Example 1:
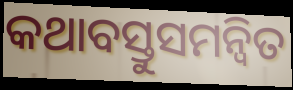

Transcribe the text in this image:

କଥାବସ୍ତୁସମନ୍ୱିତ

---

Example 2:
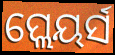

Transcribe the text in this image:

ପ୍ଲେୟର୍ସ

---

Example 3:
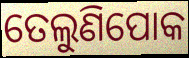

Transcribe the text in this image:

ତେଲୁଣିପୋକ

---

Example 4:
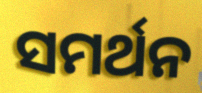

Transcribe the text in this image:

ସମର୍ଥନ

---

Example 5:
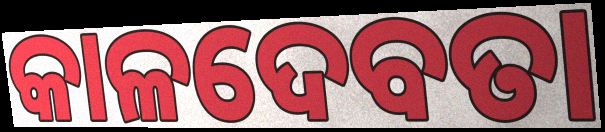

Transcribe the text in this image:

କାଳଦେବତା